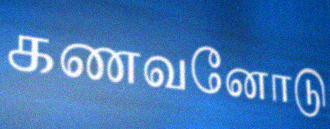
கணவனோடு